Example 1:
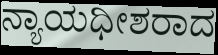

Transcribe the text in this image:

ನ್ಯಾಯಧೀಶರಾದ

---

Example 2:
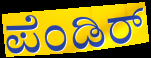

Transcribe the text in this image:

ಪೆಂಡಿರ್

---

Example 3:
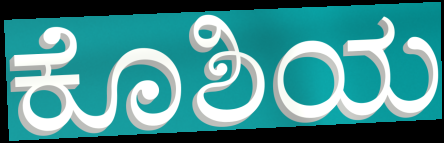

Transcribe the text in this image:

ಕೊಶಿಯ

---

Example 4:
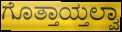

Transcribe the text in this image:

ಗೊತ್ತಾಯ್ತಲ್ವಾ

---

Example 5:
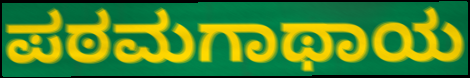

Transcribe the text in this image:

ಪಠಮಗಾಥಾಯ